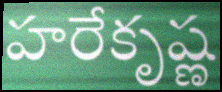
హరేకృష్ణ